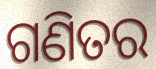
ଗଣିତର